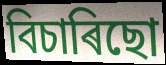
বিচাৰিছো